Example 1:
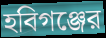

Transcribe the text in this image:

হবিগঞ্জের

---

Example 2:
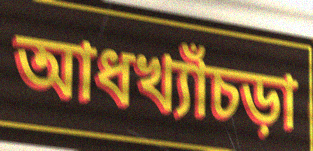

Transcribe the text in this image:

আধখ্যাঁচড়া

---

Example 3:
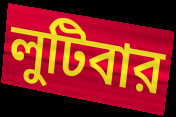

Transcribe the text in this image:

লুটিবার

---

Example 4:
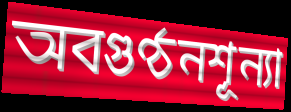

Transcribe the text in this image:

অবগুণ্ঠনশূন্যা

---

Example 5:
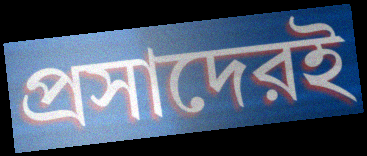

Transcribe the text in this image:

প্রসাদেরই